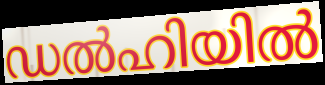
ഡൽഹിയിൽ